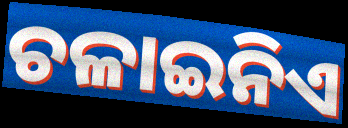
ଚଳାଇନିଏ